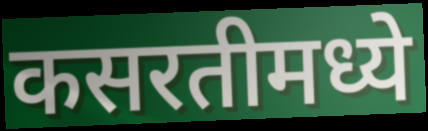
कसरतीमध्ये